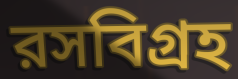
রসবিগ্রহ